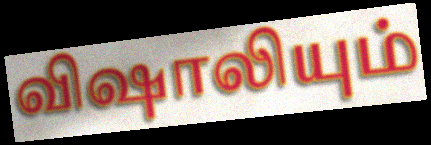
விஷாலியும்